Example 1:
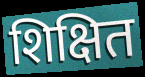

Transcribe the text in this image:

शिक्षित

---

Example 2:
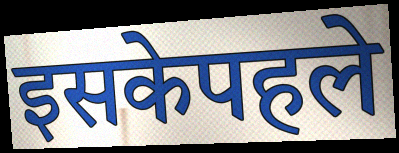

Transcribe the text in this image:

इसकेपहले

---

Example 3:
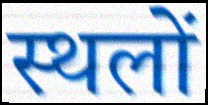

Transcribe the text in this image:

स्थलों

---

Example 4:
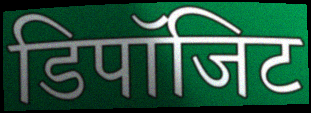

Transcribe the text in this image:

डिपॉजिट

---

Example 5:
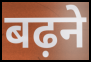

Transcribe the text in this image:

बढ़ने